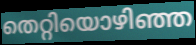
തെറ്റിയൊഴിഞ്ഞ